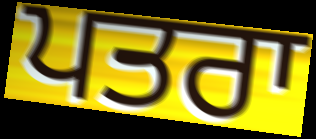
ਪਤਰਾ